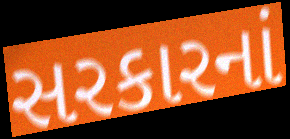
સરકારનાં